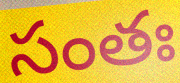
సంతః